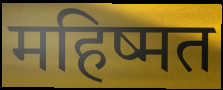
महिष्मत